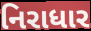
નિરાધાર